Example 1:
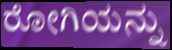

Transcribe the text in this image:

ರೋಗಿಯನ್ನು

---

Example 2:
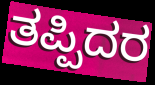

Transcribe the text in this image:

ತಪ್ಪಿದರ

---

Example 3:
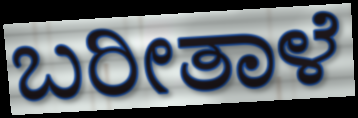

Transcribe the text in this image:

ಬರೀತಾಳೆ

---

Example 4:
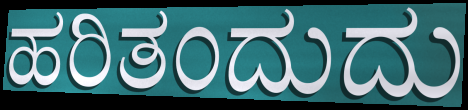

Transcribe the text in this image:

ಹರಿತಂದುದು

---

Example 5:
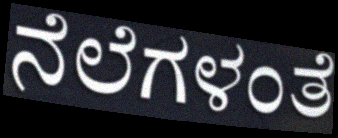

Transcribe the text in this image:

ನೆಲೆಗಳಂತೆ